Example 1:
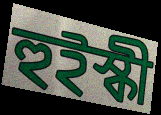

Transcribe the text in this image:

হুইস্কী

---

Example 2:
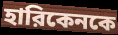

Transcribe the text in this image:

হারিকেনকে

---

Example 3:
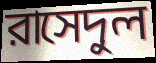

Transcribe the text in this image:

রাসেদুল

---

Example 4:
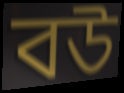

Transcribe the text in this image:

বউ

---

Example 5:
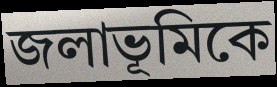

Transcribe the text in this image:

জলাভূমিকে